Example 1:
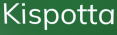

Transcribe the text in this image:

Kispotta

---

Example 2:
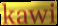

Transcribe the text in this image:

kawi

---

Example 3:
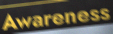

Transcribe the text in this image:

Awareness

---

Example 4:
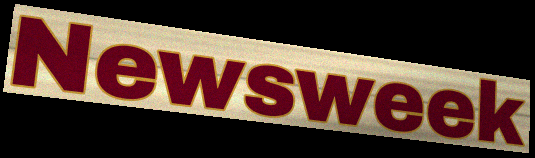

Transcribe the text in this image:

Newsweek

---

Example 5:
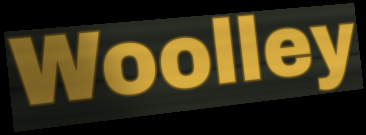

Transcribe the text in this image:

Woolley